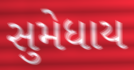
સુમેધાય